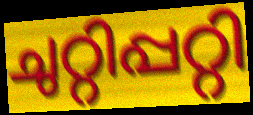
ചുറ്റിപ്പറ്റി